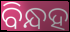
ବିନ୍ଧହ